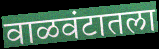
वाळवंटातला